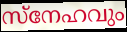
സ്നേഹവും